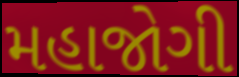
મહાજોગી